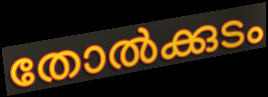
തോൽക്കുടം